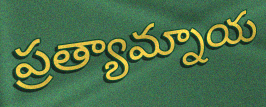
ప్రత్యామ్నాయ